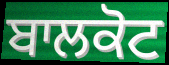
ਬਾਲਕੋਟ